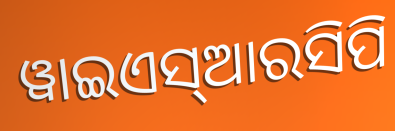
ୱାଇଏସ୍ଆରସିପି